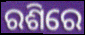
ରଶିରେ